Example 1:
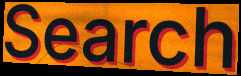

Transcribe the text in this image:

Search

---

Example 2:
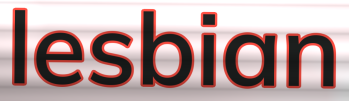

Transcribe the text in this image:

lesbian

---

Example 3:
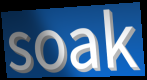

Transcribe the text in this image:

soak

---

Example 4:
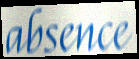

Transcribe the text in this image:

absence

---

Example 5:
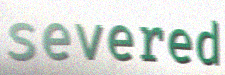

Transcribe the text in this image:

severed